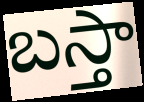
బస్తా